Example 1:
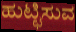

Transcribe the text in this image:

ಹುಟ್ಟಿಸುವ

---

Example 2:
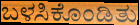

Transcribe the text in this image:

ಬಳಸಿಕೊಂಡಿತು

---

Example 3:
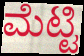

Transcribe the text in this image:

ಮೆಟ್ಟಿ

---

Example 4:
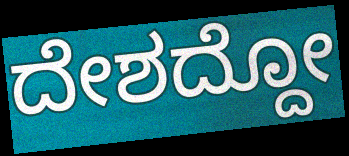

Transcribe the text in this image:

ದೇಶದ್ದೋ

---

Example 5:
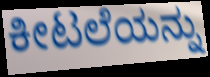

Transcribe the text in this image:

ಕೀಟಲೆಯನ್ನು